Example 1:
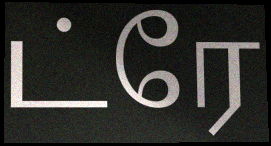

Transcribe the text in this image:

ட்ரே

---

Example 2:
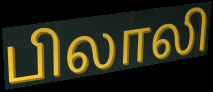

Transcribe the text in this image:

பிலாலி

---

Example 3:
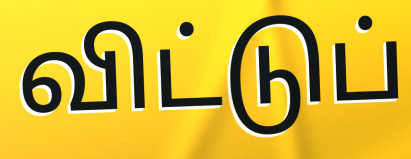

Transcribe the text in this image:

விட்டுப்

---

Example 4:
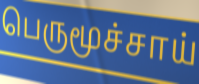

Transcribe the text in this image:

பெருமூச்சாய்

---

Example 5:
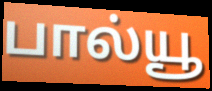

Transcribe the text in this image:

பால்யூ